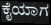
ಕೈಯಾಗ